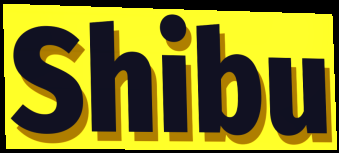
Shibu